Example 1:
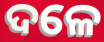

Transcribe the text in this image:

ଦଳେ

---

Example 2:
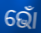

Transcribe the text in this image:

ଭୋଁ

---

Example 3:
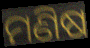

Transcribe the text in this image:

ମଣିଷ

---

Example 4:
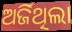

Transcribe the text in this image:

ଅର୍ଜିଥିଲା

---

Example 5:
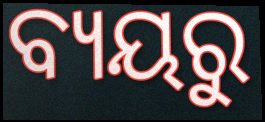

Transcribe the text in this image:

ବ୍ୟୟରୁ